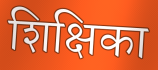
शिक्षिका